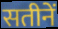
सतीनें